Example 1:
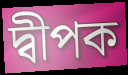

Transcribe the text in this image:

দ্বীপক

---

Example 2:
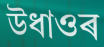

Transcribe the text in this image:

উধাওৰ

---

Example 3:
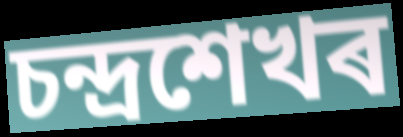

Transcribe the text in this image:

চন্দ্ৰশেখৰ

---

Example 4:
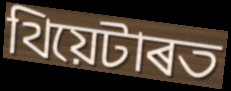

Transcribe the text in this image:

থিয়েটাৰত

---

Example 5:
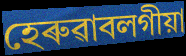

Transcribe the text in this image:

হেৰুৱাবলগীয়া